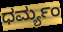
ಧರ್ಮ್ಯಂ